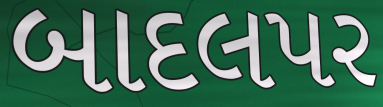
બાદલપર